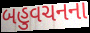
બહુવચનના